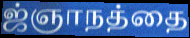
ஜ்ஞாநத்தை